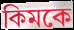
কিমকে